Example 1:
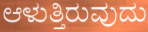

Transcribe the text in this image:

ಆಳುತ್ತಿರುವುದು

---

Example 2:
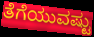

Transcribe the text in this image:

ತೆಗೆಯುವಷ್ಟು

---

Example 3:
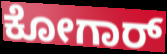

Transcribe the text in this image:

ಕೋಗಾರ್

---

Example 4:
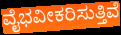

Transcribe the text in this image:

ವೈಭವೀಕರಿಸುತ್ತಿವೆ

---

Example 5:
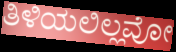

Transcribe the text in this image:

ತಿಳಿಯಲಿಲ್ಲವೋ